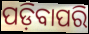
ପଡ଼ିବାପରି